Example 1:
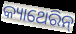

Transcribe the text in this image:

କ୍ୟାଥେରିନ୍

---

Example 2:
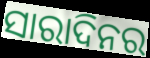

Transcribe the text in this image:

ସାରାଦିନର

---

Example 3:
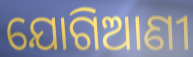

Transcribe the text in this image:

ଯୋଗିଆଣୀ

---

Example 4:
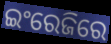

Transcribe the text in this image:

ଇଂରେଜିରେ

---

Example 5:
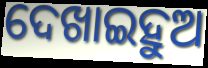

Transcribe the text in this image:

ଦେଖାଇହୁଅ